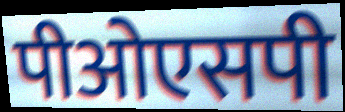
पीओएसपी